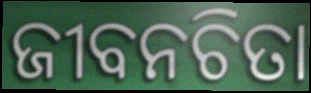
ଜୀବନଚିତା